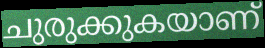
ചുരുക്കുകയാണ്